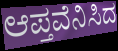
ಆಪ್ತವೆನಿಸಿದ